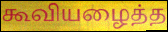
கூவியழைத்த